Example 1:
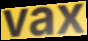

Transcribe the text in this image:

vax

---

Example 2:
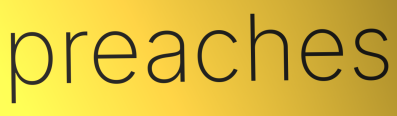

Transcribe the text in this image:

preaches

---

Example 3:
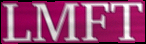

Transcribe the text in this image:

LMFT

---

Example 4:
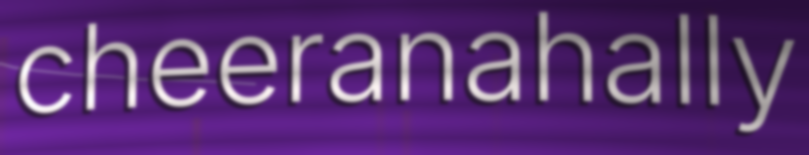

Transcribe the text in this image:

cheeranahally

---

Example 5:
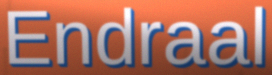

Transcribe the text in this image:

Endraal